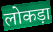
लोकड़ा